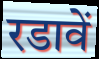
रडावें